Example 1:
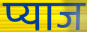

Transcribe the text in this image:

प्याज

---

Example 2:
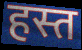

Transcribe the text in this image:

हस्त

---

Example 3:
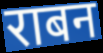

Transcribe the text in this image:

राबन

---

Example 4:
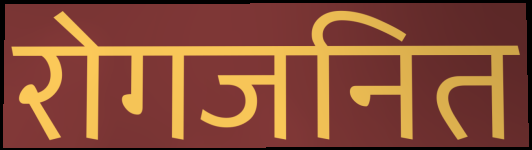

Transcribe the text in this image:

रोगजनित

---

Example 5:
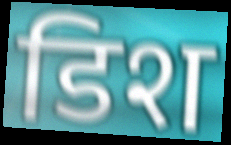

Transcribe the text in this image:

डिश